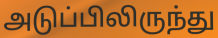
அடுப்பிலிருந்து